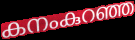
കനംകുറഞ്ഞ